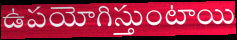
ఉపయోగిస్తుంటాయి